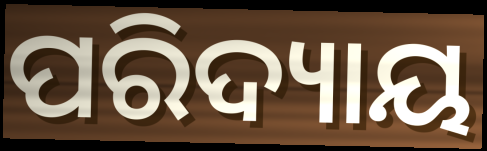
ପରିଦ୍ୟାୟ